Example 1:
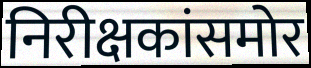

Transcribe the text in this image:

निरीक्षकांसमोर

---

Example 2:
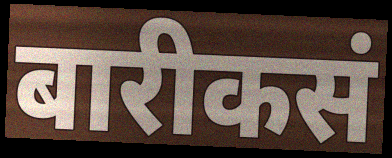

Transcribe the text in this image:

बारीकसं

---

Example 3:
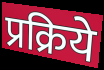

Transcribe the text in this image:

प्रक्रिये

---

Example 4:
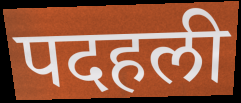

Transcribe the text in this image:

पदहली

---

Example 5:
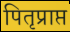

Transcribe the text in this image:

पितृप्राप्त